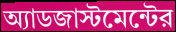
অ্যাডজাস্টমেন্টের